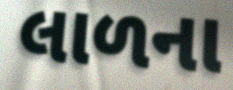
લાળના